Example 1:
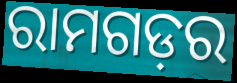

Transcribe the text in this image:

ରାମଗଡ଼ର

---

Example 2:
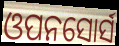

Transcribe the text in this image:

ଓପନସୋର୍ସ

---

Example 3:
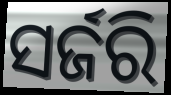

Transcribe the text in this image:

ସର୍ଜରି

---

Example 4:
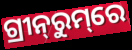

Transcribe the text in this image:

ଗ୍ରୀନ୍‌ରୁମ୍‌ରେ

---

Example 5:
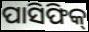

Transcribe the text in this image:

ପାସିଫିକ୍